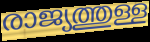
രാജ്യത്തുള്ള